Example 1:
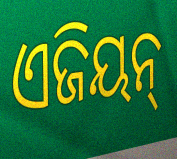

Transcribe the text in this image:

ଏଜିୟନ୍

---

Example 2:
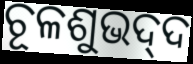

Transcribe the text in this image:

ଚୂଳଶୁଭଦ୍‍ଦ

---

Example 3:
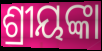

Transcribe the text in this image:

ଶ୍ରୀୟଙ୍କା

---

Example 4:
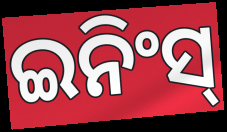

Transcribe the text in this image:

ଇନିଂସ୍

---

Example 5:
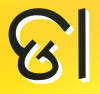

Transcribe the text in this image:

ଡା